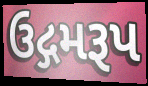
ઉદ્ગમરૂપ